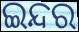
ଇନ୍ଦର